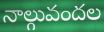
నాల్గువందల